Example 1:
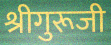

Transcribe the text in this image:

श्रीगुरूजी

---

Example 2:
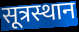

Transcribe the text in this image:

सूत्रस्थान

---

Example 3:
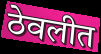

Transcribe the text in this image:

ठेवलीत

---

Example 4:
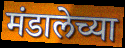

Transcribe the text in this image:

मंडालेच्या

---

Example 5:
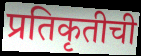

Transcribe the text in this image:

प्रतिकृतीची